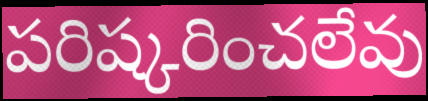
పరిష్కరించలేవు